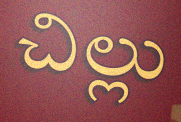
చిల్లు